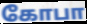
கோபா